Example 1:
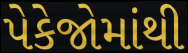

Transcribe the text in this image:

પેકેજોમાંથી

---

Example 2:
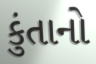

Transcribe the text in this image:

કુંતાનો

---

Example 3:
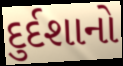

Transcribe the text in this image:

દુર્દશાનો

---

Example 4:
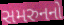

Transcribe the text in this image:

સમરુનનો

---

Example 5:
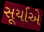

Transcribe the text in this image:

સૂર્યાએ